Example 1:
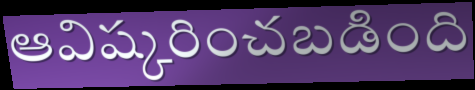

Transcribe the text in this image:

ఆవిష్కరించబడింది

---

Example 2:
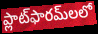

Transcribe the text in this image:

ప్లాట్‌ఫారమ్‌లలో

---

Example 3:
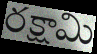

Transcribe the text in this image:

రక్షామి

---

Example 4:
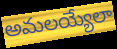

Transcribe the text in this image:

అమలయ్యేలా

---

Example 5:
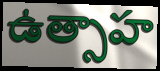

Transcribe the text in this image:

ఉత్సాహ